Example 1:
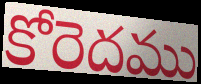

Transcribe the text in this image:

కోరెదము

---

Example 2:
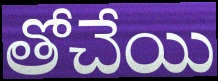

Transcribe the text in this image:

తోచేయి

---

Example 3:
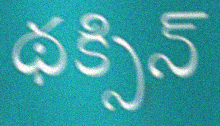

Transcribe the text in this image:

థక్సిన్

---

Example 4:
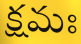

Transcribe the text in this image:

క్షమః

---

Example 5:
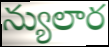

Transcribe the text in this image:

న్యులార